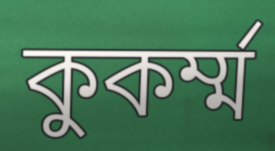
কুকর্ম্ম